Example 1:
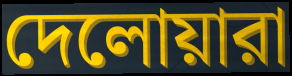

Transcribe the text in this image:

দেলোয়ারা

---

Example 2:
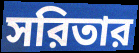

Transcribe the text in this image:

সরিতার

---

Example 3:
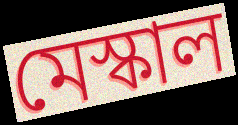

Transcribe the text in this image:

মেস্কাল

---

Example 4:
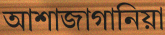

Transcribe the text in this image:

আশাজাগানিয়া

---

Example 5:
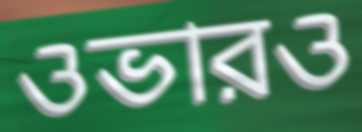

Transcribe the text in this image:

ওভারও